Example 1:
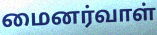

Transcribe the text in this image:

மைனர்வாள்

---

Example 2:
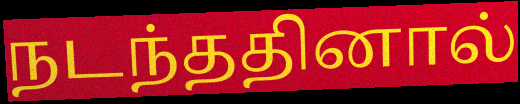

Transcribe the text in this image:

நடந்ததினால்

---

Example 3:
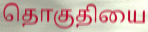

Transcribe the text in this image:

தொகுதியை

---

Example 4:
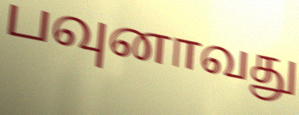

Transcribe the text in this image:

பவுனாவது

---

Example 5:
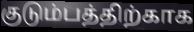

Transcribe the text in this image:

குடும்பத்திற்காக